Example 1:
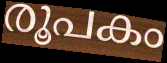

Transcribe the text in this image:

രൂപകം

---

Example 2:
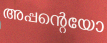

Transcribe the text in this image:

അപ്പന്റെയോ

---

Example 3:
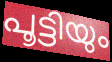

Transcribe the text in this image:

പൂട്ടിയും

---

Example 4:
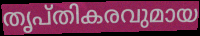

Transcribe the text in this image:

തൃപ്തികരവുമായ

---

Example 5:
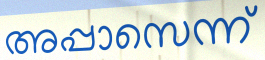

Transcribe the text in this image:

അപ്പാസെന്ന്